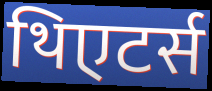
थिएटर्स